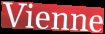
Vienne